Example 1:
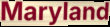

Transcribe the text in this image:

Maryland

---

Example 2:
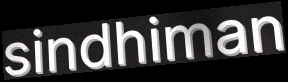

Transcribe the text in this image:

sindhiman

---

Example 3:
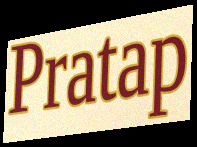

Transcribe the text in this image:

Pratap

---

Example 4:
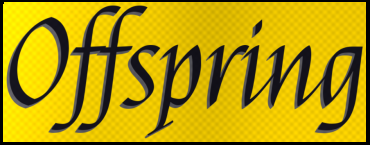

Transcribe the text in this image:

Offspring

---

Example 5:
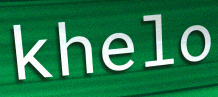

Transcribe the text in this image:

khelo